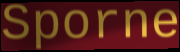
Sporne